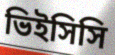
ভিইসিসি